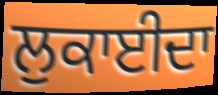
ਲੁਕਾਈਦਾ